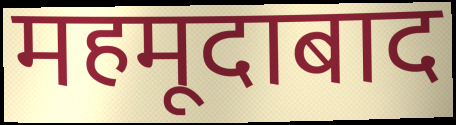
महमूदाबाद